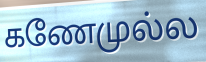
கணேமுல்ல